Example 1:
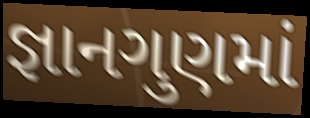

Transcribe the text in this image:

જ્ઞાનગુણમાં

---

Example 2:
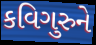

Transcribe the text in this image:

કવિગુરુને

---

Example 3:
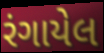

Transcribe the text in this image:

રંગાયેલ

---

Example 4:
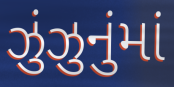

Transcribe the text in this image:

ઝુંઝુનુંમાં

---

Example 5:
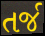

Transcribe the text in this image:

તર્જ